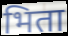
भिता